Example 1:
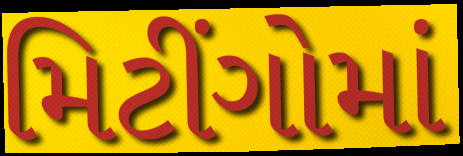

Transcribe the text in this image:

મિટીંગોમાં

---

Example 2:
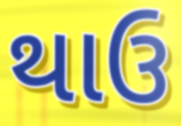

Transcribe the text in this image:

થાઉ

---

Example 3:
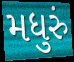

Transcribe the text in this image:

મધુરું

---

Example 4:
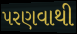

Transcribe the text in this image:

પરણવાથી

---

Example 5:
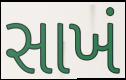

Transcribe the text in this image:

સાખં